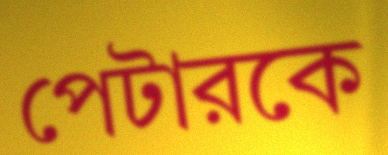
পেটারকে